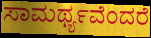
ಸಾಮರ್ಥ್ಯವೆಂದರೆ